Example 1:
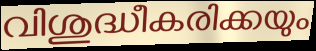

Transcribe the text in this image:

വിശുദ്ധീകരിക്കയും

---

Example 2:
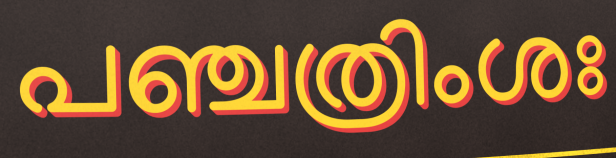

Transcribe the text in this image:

പഞ്ചത്രിംശഃ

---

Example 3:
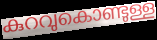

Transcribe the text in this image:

കുറവുകൊണ്ടുള്ള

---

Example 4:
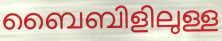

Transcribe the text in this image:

ബൈബിളിലുള്ള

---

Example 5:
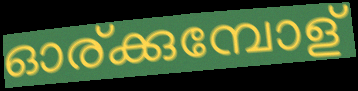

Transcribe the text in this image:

ഓര്ക്കുമ്പോള്